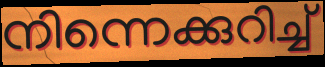
നിന്നെക്കുറിച്ച്